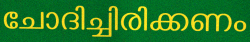
ചോദിച്ചിരിക്കണം